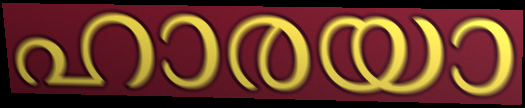
ഹാരയാ